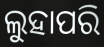
ଲୁହାପରି